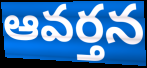
ఆవర్తన